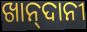
ଖାନ୍‍ଦାନୀ